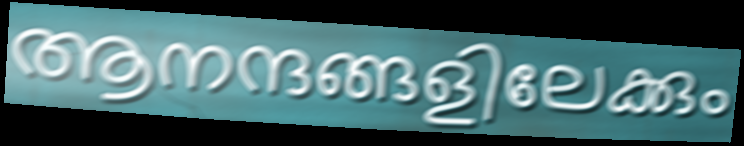
ആനന്ദങ്ങളിലേക്കും